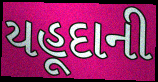
યહૂદાની